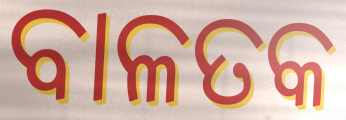
ବାଳତକ